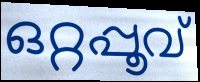
ഒറ്റപ്പൂവ്